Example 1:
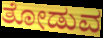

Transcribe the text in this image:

ತೋಡುವ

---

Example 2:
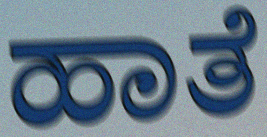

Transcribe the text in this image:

ಹಾತೆ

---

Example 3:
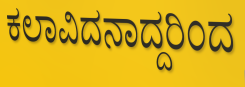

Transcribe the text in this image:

ಕಲಾವಿದನಾದ್ದರಿಂದ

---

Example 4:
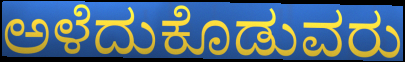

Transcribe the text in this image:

ಅಳೆದುಕೊಡುವರು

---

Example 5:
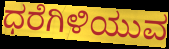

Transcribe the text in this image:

ಧರೆಗಿಳಿಯುವ